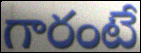
గారంటే